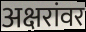
अक्षरांवर